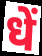
धें